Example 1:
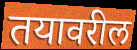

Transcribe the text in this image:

तयावरील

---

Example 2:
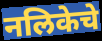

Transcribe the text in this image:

नलिकेचे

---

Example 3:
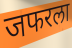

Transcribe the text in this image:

जफरला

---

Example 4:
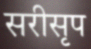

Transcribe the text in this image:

सरीसृप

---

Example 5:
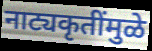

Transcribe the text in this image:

नाट्यकृतींमुळे